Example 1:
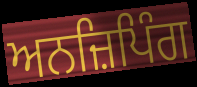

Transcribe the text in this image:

ਅਨਜ਼ਿਪਿੰਗ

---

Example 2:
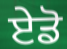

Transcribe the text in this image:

ਏਡੋ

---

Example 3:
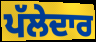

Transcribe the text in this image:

ਪੱਲੇਦਾਰ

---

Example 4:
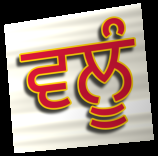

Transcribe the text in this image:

ਵਲੂੰ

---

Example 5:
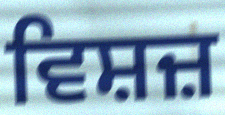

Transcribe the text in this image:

ਵਿਸ਼ਜ਼